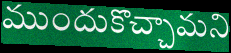
ముందుకొచ్చామని